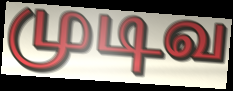
முடிவ